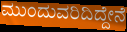
ಮುಂದುವರಿದಿದ್ದೇನೆ